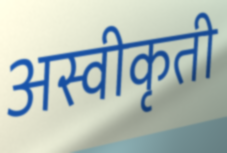
अस्वीकृती